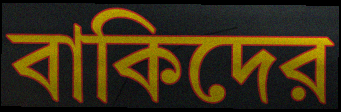
বাকিদের